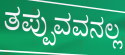
ತಪ್ಪುವವನಲ್ಲ